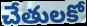
చేతులకో